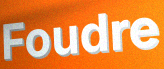
Foudre